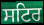
ਸਟਿਰ